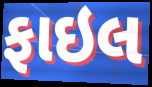
ફાઇલ